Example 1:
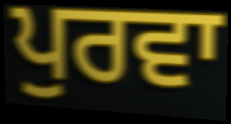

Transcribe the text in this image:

ਪੁਰਵਾ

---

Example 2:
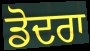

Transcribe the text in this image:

ਡੋਦਰਾ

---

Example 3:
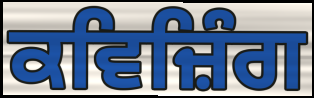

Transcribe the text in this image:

ਕਵਿਜ਼ਿੰਗ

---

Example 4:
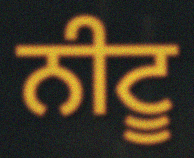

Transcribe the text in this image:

ਨੀਟੂ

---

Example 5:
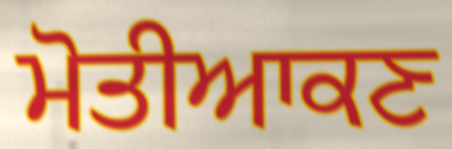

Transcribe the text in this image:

ਮੋਤੀਆਕਣ